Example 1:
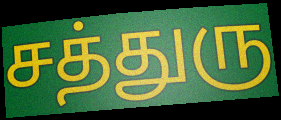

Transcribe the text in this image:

சத்துரு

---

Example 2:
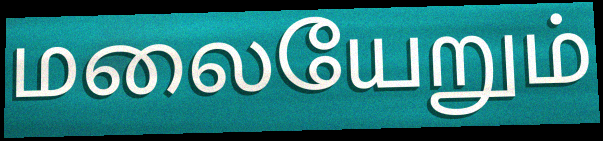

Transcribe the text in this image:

மலையேறும்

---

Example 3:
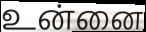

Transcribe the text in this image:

உன்னை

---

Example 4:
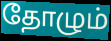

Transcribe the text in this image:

தோழும்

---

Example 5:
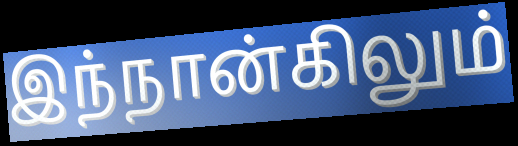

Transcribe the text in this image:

இந்நான்கிலும்